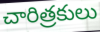
చారిత్రకులు